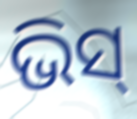
ଭିସ୍